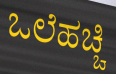
ಒಲೆಹಚ್ಚಿ